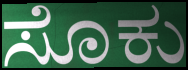
ಸೊಕು